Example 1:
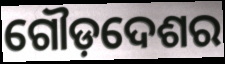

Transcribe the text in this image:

ଗୌଡ଼ଦେଶର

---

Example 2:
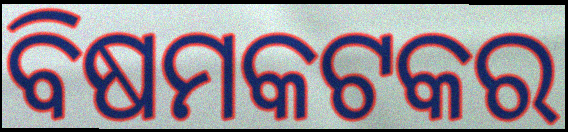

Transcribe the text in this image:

ବିଷମକଟକର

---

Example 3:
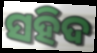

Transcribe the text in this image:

ସହିଦ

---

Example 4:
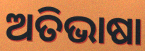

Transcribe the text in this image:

ଅତିଭାଷା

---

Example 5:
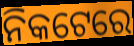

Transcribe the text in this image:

ନିକଟେରେ